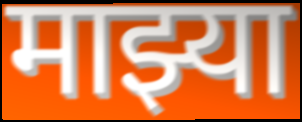
माझ्या